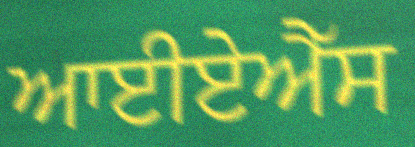
ਆਈਏਐੱਸ